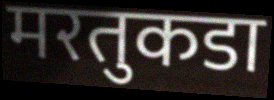
मरतुकडा